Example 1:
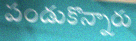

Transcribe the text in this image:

పండుకొన్నారు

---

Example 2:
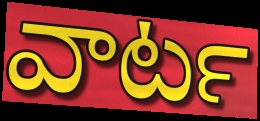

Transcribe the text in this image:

వాటర్‍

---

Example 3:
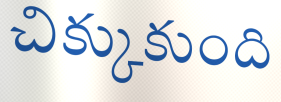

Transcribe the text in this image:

చిక్కుకుంది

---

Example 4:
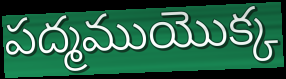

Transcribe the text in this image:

పద్మముయొక్క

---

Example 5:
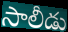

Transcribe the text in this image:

సాలీడు